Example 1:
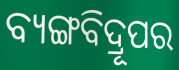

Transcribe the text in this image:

ବ୍ୟଙ୍ଗବିଦ୍ରୂପର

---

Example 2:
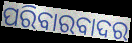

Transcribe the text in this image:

ପରିବାରବାଦର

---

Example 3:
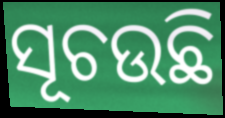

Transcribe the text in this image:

ସୂଚଉଛି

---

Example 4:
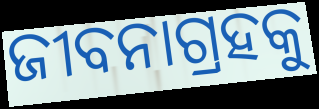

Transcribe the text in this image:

ଜୀବନାଗ୍ରହକୁ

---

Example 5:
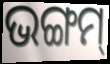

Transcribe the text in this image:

ଭଙ୍ଗମ୍